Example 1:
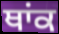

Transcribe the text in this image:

ਥਾਂਕ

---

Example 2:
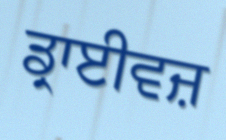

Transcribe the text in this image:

ਡ੍ਰਾਈਵਜ਼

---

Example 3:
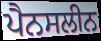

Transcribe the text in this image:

ਪੈਨਸਲੀਨ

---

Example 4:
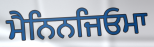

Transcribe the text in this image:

ਮੈਨਿਨਜਿਓਮਾ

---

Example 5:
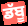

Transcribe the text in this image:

ਡੱਬੂ